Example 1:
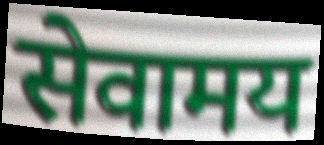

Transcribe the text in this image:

सेवामय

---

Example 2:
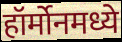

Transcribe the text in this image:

हॉर्मोनमध्ये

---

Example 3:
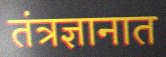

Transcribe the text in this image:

तंत्रज्ञानात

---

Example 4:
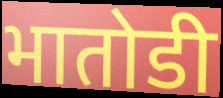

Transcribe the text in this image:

भातोडी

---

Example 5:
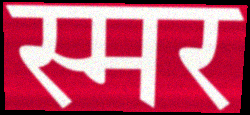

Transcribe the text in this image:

स्मर